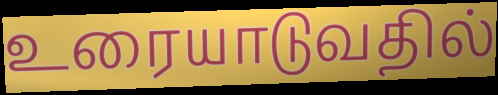
உரையாடுவதில்